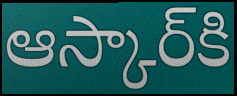
ఆస్కార్‌కి